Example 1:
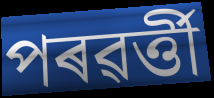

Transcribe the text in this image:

পৰৱৰ্ত্তী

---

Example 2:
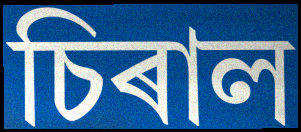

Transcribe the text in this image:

চিৰাল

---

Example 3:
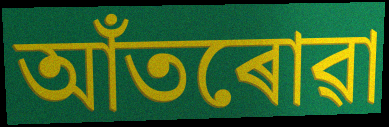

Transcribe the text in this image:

আঁতৰোৱা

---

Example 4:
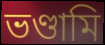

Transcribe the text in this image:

ভণ্ডামি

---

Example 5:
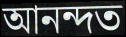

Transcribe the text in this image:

আনন্দত